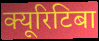
क्यूरिटिबा